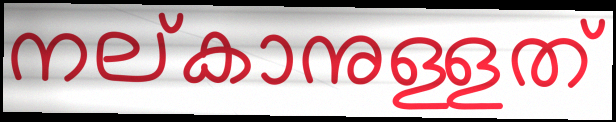
നല്കാനുള്ളത്